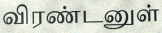
விரண்டனுள்